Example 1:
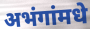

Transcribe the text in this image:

अभंगांमधे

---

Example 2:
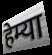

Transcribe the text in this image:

हेम्या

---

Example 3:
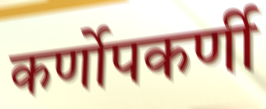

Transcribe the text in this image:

कर्णोपकर्णी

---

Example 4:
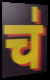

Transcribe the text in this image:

च॑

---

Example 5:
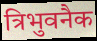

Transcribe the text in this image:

त्रिभुवनैक